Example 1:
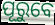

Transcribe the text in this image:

ପୂରୁବେ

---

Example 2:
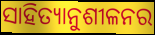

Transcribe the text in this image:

ସାହିତ୍ୟାନୁଶୀଳନର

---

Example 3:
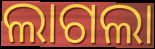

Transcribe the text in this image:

ଲାଗଲା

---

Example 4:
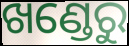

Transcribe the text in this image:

ଖଣ୍ଡେରୁ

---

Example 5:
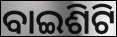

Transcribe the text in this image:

ବାଇଶିଟି